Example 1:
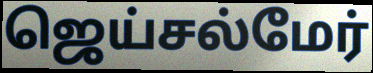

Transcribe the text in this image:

ஜெய்சல்மேர்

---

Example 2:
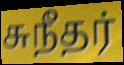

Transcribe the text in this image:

சுநீதர்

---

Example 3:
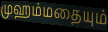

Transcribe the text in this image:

முஹம்மதையும்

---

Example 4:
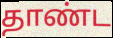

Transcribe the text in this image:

தாண்ட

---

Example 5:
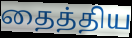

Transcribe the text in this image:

தைத்திய